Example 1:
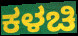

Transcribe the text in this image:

ಕಳಚಿ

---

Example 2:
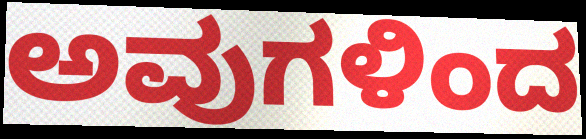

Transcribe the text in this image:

ಅವುಗಳಿಂದ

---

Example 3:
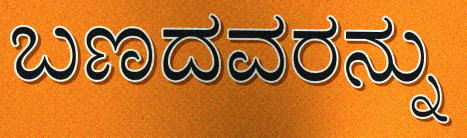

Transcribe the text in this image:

ಬಣದವರನ್ನು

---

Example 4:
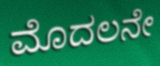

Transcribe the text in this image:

ಮೊದಲನೇ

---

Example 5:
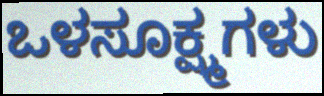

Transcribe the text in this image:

ಒಳಸೂಕ್ಷ್ಮಗಳು